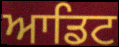
ਆਡਿਟ